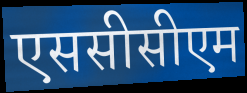
एससीसीएम